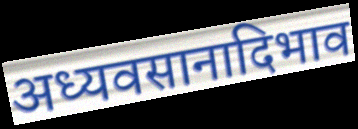
अध्यवसानादिभाव